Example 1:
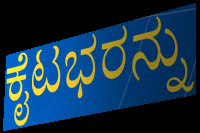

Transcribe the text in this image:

ಕೈಟಭರನ್ನು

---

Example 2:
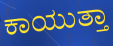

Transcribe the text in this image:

ಕಾಯುತ್ತಾ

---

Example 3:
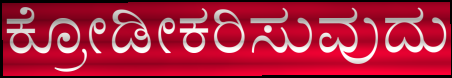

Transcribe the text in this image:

ಕ್ರೋಡೀಕರಿಸುವುದು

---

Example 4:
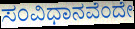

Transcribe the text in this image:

ಸಂವಿಧಾನವೆಂದೇ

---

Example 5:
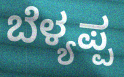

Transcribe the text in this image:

ಬೆಳ್ಯಪ್ಪ